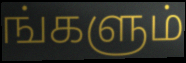
ங்களும்